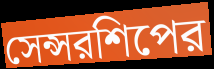
সেন্সরশিপের